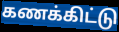
கணக்கிட்டு